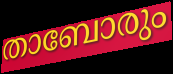
താബോരും